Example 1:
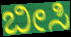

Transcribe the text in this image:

ಬೀಸಿ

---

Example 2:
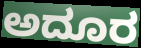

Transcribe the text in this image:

ಅದೂರ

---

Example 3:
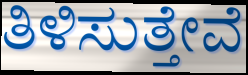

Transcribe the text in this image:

ತಿಳಿಸುತ್ತೇವೆ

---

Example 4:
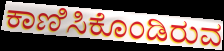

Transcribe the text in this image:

ಕಾಣಿಸಿಕೊಂಡಿರುವ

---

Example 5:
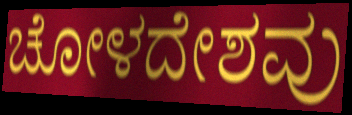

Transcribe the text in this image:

ಚೋಳದೇಶವು